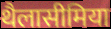
थैलासीमिया